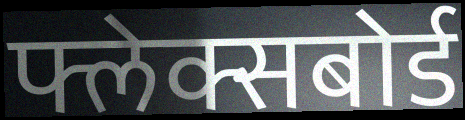
फ्लेक्सबोर्ड